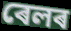
ৰেলৰ